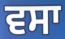
ਵਸਾ